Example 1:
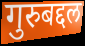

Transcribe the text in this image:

गुरुबद्दल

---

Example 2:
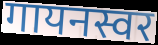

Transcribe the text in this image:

गायनस्वर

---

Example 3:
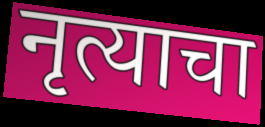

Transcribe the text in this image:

नृत्याचा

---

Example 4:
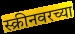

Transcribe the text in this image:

स्क्रीनवरच्या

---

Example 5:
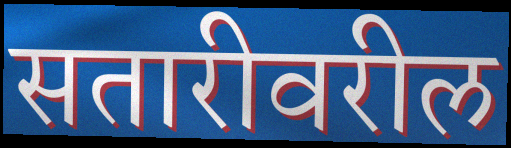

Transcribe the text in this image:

सतारीवरील